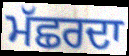
ਮੱਛਰਦਾ